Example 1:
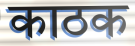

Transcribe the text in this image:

काठक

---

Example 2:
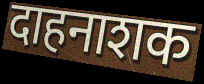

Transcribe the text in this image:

दाहनाशक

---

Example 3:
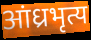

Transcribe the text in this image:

आंध्रभृत्य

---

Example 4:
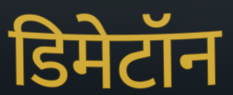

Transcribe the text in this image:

डिमेटॉन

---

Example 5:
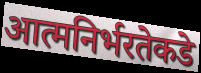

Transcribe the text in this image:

आत्मनिर्भरतेकडे